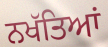
ਨਖੱਤਿਆਂ